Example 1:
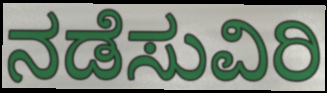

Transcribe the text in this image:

ನಡೆಸುವಿರಿ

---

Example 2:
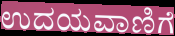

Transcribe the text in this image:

ಉದಯವಾಣಿಗೆ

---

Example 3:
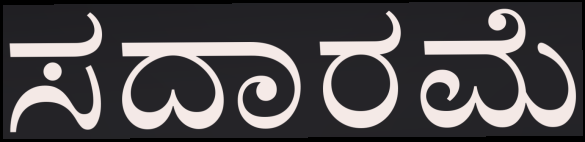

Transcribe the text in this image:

ಸದಾರಮೆ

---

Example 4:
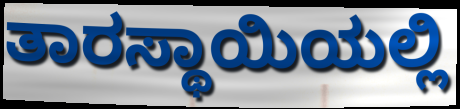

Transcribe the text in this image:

ತಾರಸ್ಥಾಯಿಯಲ್ಲಿ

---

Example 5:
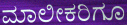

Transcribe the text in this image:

ಮಾಲೀಕರಿಗೂ